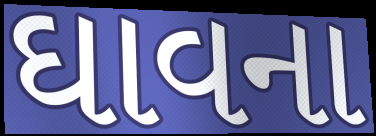
ઘાવના